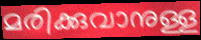
മരിക്കുവാനുള്ള